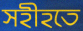
সহীহতে